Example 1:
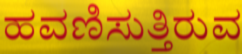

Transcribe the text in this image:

ಹವಣಿಸುತ್ತಿರುವ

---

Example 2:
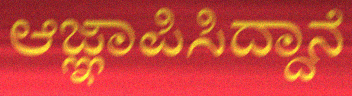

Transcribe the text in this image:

ಆಜ್ಞಾಪಿಸಿದ್ದಾನೆ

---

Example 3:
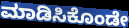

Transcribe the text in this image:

ಮಾಡಿಸಿಕೊಂಡೇ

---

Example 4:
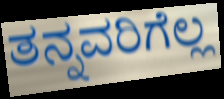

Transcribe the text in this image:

ತನ್ನವರಿಗೆಲ್ಲ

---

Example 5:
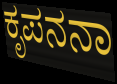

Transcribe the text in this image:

ಕೃಪನನಾ